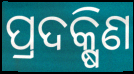
ପ୍ରଦକ୍ଷିଣ